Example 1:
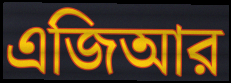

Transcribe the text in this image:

এজিআর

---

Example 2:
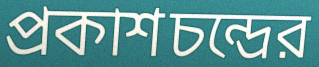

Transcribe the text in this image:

প্রকাশচন্দ্রের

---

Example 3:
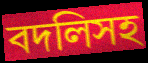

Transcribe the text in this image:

বদলিসহ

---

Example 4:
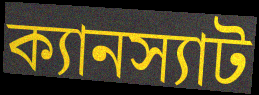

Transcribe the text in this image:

ক্যানস্যাট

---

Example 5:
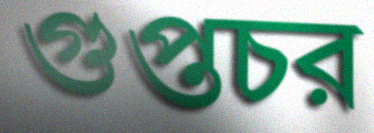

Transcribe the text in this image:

গুপ্তচর